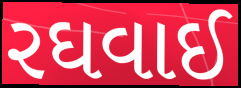
રઘવાઈ